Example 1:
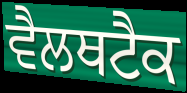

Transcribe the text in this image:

ਵੈਲਥਟੈਕ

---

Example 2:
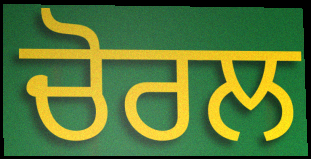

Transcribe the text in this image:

ਚੋਰਲ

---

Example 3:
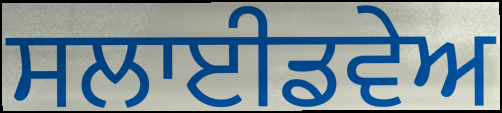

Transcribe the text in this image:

ਸਲਾਈਡਵੇਅ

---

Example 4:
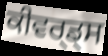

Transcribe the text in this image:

ਕੀਵਰ੍ਡ੍ਸ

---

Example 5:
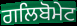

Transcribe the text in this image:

ਗਲਿਬੋਮੇਟ